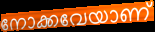
നോക്കവേയാണ്